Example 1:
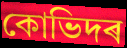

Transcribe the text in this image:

কোভিদৰ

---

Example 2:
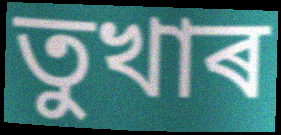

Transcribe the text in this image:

তুখাৰ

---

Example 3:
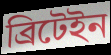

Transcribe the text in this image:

ব্ৰিটেইন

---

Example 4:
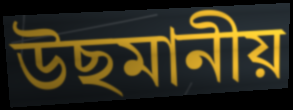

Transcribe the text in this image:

উছমানীয়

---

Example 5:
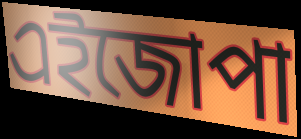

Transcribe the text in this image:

এইজোপা